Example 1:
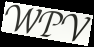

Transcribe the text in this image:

WPV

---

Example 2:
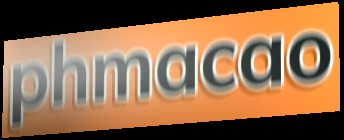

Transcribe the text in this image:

phmacao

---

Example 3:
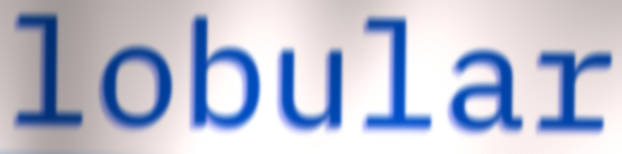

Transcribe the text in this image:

lobular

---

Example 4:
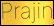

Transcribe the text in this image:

Prajin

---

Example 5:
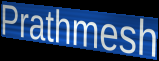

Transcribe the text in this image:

Prathmesh